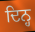
ਦਿਨ੍ਹ